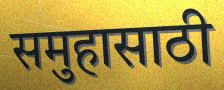
समुहासाठी